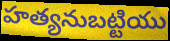
హత్యనుబట్టియు